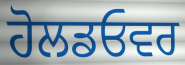
ਹੋਲਡਓਵਰ